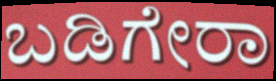
ಬಡಿಗೇರಾ